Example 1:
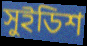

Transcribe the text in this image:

সুইডিশ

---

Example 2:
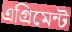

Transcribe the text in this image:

এগ্রিমেন্ট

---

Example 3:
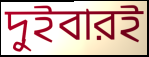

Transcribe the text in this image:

দুইবারই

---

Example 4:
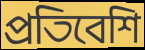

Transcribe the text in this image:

প্রতিবেশি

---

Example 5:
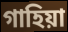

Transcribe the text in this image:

গাহিয়া